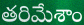
తరిమేశాం